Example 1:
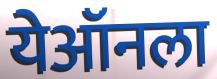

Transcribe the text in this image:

येऑनला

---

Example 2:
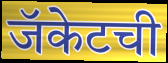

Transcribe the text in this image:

जॅकेटची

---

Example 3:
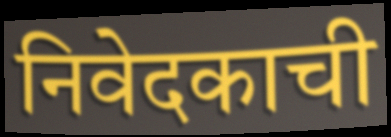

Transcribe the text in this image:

निवेदकाची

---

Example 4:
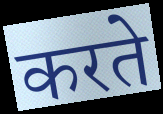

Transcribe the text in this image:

करते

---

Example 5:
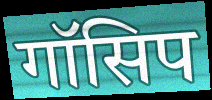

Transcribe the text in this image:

गॉसिप